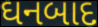
ઘનબાદ